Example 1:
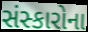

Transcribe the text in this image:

સંસ્કારોના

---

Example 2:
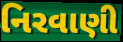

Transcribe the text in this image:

નિરવાણી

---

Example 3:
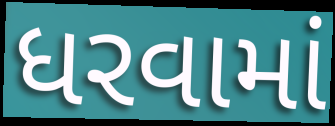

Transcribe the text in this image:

ધરવામાં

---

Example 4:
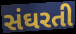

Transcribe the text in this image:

સંઘરતી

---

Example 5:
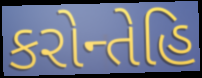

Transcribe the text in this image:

કરોન્તેહિ